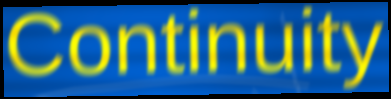
Continuity